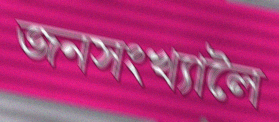
জনসংখ্যালৈ